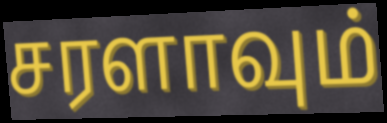
சரளாவும்